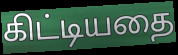
கிட்டியதை